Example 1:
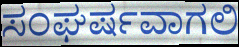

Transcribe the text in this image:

ಸಂಘರ್ಷವಾಗಲಿ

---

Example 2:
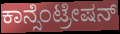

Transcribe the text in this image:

ಕಾನ್ಸೆಂಟ್ರೇಷನ್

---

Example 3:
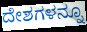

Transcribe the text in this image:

ದೇಶಗಳನ್ನೂ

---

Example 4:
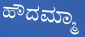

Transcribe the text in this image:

ಹೌದಮ್ಮಾ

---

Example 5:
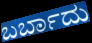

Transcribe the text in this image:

ಬರ್ಬಾದು